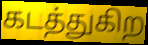
கடத்துகிற